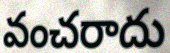
వంచరాదు